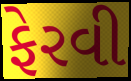
ફેરવી